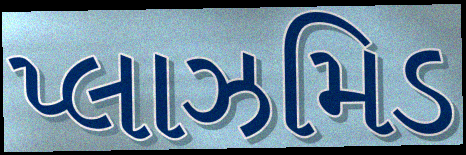
પ્લાઝમિડ